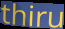
thiru